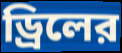
ড্রিলের